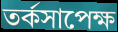
তর্কসাপেক্ষ